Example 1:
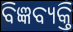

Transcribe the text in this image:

ବିଜ୍ଞବ୍ୟକ୍ତି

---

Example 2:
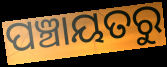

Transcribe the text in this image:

ପଞ୍ଚାୟତରୁ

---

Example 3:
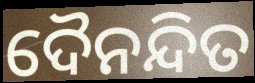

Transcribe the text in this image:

ଦୈନନ୍ଦିତ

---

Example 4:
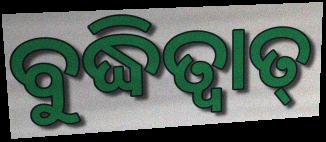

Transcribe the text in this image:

ବୁଦ୍ଧିତ୍ୱାତ୍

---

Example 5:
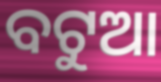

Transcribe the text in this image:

ବଟୁଆ